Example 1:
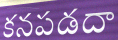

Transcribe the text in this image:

కనపడదా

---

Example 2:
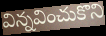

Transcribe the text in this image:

విన్నవించుకొని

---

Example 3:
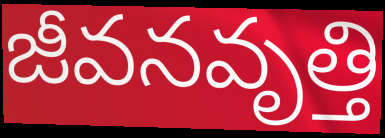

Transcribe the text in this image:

జీవనవృత్తి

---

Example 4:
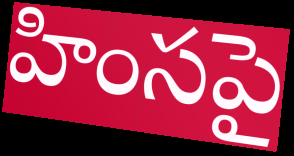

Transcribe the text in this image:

హింసపై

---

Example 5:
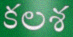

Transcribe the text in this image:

కలశ